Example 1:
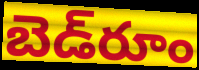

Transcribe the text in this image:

బెడ్‌రూం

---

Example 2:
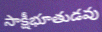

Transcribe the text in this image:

సాక్షీభూతుడవు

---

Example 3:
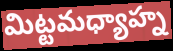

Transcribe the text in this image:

మిట్టమధ్యాహ్న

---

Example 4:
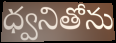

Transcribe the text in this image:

ధ్వనితోను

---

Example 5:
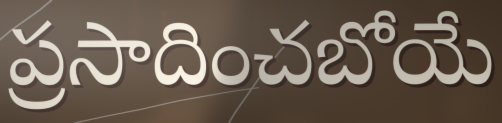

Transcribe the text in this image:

ప్రసాదించబోయే